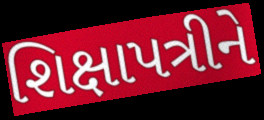
શિક્ષાપત્રીને